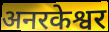
अनरकेश्वर